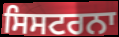
ਸਿਸਟਰਨਾ